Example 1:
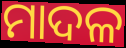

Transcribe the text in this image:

ମାଦଳ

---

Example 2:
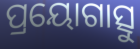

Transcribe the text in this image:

ପ୍ରୟୋଗାତ୍ସୁ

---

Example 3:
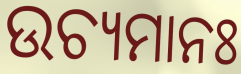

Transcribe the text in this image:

ଉଚ୍ୟମାନଃ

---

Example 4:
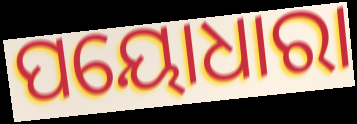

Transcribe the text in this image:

ପୟୋଧାରା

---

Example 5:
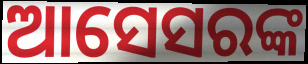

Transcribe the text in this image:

ଆସେସରଙ୍କ